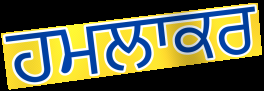
ਹਮਲਾਕਰ